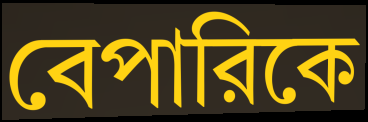
বেপারিকে